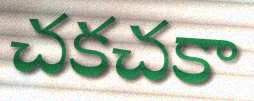
చకచకా